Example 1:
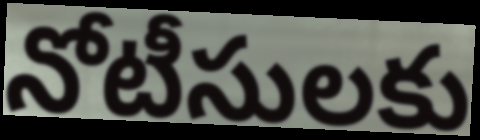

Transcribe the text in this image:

నోటీసులకు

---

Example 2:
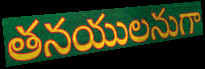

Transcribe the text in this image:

తనయులనుగా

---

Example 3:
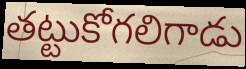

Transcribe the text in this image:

తట్టుకోగలిగాడు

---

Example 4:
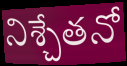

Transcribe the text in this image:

నిశ్చేతనో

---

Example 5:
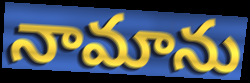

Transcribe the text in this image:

నామాను